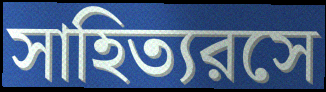
সাহিত্যরসে